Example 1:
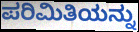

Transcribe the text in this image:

ಪರಿಮಿತಿಯನ್ನು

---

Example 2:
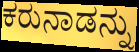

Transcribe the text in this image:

ಕರುನಾಡನ್ನು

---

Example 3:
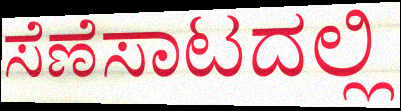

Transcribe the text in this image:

ಸೆಣೆಸಾಟದಲ್ಲಿ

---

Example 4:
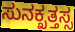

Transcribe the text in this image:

ಸುನಕ್ಖತ್ತಸ್ಸ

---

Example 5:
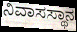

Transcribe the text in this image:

ನಿವಾಸಸ್ಥಾನ